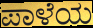
ಪಾಳೆಯ